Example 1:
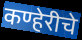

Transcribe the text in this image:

कण्हेरीचे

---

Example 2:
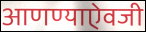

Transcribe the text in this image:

आणण्याऐवजी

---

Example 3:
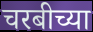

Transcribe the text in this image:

चरबीच्या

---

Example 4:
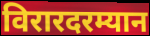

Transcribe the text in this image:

विरारदरम्यान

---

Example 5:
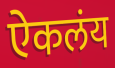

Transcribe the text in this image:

ऐकलंय